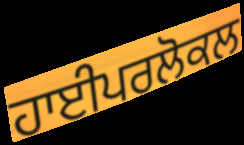
ਹਾਈਪਰਲੋਕਲ